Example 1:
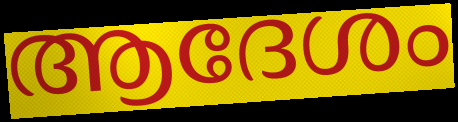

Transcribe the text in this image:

ആദേശം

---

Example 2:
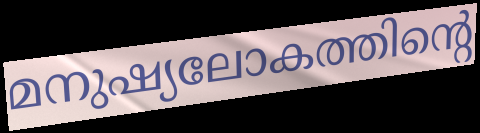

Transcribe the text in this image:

മനുഷ്യലോകത്തിന്റെ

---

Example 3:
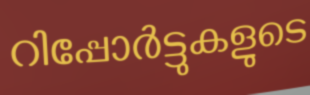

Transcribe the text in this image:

റിപ്പോർട്ടുകളുടെ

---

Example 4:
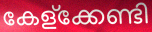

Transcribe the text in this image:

കേള്ക്കേണ്ടി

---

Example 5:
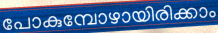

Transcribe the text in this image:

പോകുമ്പോഴായിരിക്കാം